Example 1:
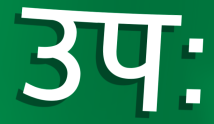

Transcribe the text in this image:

उपः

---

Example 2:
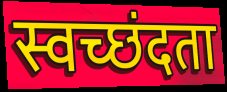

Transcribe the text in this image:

स्वच्छंदता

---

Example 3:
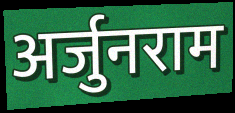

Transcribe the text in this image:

अर्जुनराम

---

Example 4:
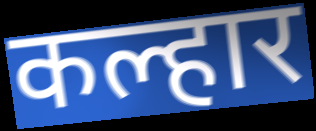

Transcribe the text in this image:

कल्हार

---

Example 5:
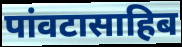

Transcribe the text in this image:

पांवटासाहिब